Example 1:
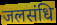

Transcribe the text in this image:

जलसंधि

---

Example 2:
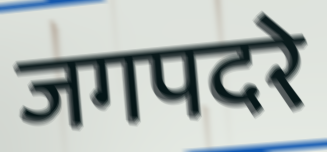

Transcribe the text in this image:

जगपदरे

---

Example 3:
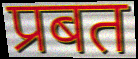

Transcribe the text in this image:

प्रबत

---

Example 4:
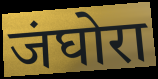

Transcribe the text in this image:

जंघोरा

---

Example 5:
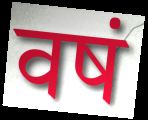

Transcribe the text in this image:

वषं